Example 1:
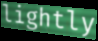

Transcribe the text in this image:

lightly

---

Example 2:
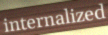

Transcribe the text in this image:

internalized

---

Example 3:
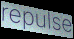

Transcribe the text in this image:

repulse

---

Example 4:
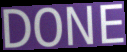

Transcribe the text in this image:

DONE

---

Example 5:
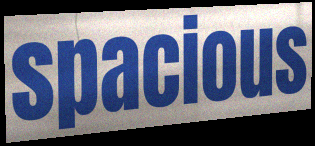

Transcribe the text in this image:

spacious